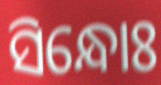
ସିନ୍ଧୋଃ